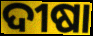
ଦୀଷା